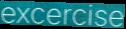
excercise